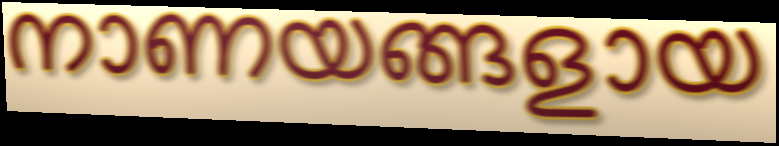
നാണയങ്ങളായ